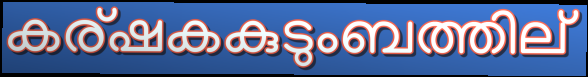
കര്ഷകകുടുംബത്തില്